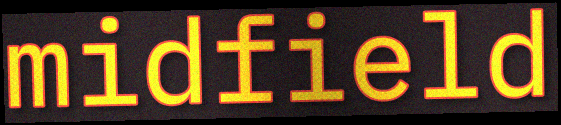
midfield